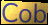
Cob